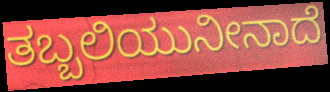
ತಬ್ಬಲಿಯುನೀನಾದೆ